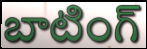
బాటింగ్